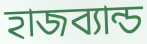
হাজব্যান্ড